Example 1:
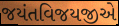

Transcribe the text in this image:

જયંતવિજયજીએ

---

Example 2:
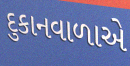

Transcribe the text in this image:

દુકાનવાળાએ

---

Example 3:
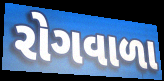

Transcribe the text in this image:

રોગવાળા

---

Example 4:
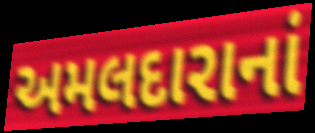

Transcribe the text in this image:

અમલદારાનાં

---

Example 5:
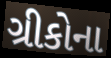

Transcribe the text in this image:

ગ્રીકોના